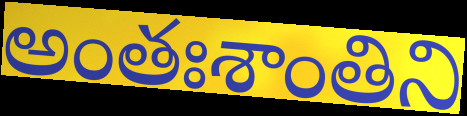
అంతఃశాంతిని